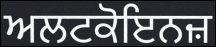
ਅਲਟਕੋਇਨਜ਼